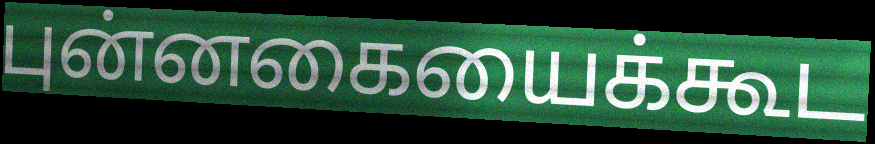
புன்னகையைக்கூட